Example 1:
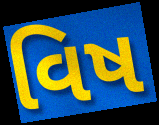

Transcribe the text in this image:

વિષ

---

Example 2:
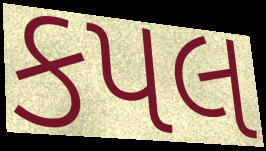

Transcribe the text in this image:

કપલ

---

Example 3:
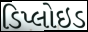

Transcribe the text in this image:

ડિપ્લોઇડ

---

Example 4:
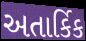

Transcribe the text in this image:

અતાર્કિક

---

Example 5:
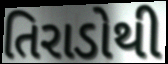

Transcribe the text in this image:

તિરાડોથી